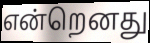
என்றெனது